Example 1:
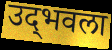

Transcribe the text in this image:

उद्‌भवला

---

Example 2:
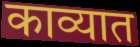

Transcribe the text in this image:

काव्यात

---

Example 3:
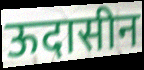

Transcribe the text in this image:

ऊदासीन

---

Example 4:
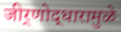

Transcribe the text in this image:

जीर्णोद्धारामुळे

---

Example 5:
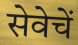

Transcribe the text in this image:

सेवेचें